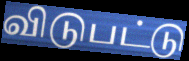
விடுபட்டு